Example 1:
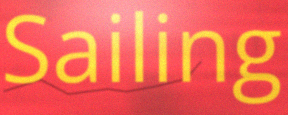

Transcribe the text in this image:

Sailing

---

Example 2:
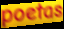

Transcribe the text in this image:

poetas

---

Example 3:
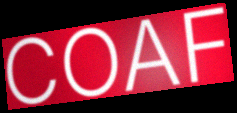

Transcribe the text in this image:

COAF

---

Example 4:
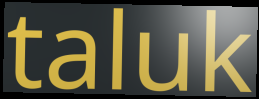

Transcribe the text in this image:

taluk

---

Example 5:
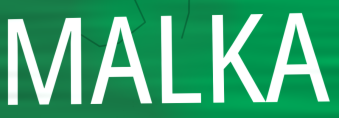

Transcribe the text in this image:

MALKA